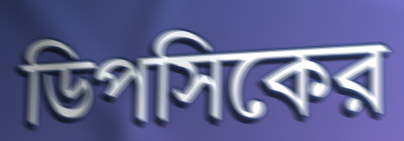
ডিপসিকের